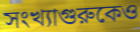
সংখ্যাগুরুকেও